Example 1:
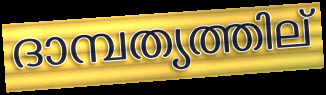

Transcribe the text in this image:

ദാമ്പത്യത്തില്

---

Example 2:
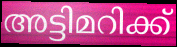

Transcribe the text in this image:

അട്ടിമറിക്ക്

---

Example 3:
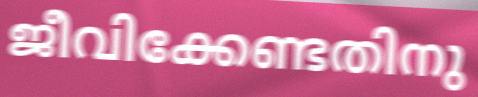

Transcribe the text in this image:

ജീവിക്കേണ്ടതിനു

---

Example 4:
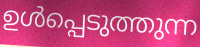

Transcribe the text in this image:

ഉൾപ്പെടുത്തുന്ന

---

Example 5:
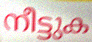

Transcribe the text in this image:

നീട്ടുക